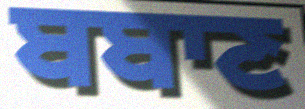
ਬਬਾਣ